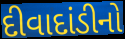
દીવાદાંડીનો